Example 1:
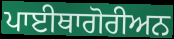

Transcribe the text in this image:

ਪਾਈਥਾਗੋਰੀਅਨ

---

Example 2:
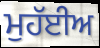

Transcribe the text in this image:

ਮੁਹੱਈਅ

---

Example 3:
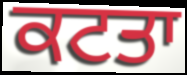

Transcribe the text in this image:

ਕਟਤਾ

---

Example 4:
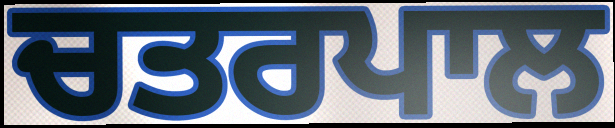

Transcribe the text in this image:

ਚਤਰਪਾਲ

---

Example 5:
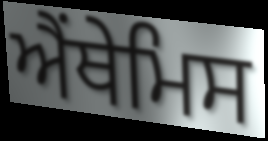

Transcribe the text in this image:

ਐਂਥੇਮਿਸ